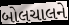
બોલચાલને